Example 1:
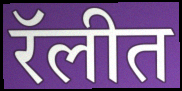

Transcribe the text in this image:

रॅलीत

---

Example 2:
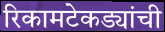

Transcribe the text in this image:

रिकामटेकड्यांची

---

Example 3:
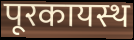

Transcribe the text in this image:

पूरकायस्थ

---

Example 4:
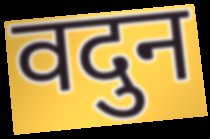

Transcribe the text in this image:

वदुन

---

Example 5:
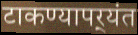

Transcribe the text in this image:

टाकण्यापर्यंत